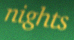
nights